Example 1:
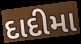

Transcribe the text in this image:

દાદીમા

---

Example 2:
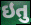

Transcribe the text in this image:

ઇતુ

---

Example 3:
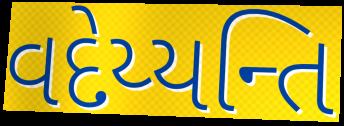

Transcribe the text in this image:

વદેય્યન્તિ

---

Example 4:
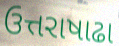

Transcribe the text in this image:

ઉત્તરાષાઢા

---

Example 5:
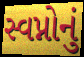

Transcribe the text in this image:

સ્વપ્નોનું